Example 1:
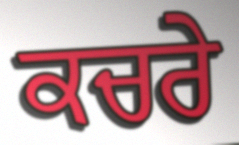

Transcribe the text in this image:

ਕਚਰੇ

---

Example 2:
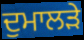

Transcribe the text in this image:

ਦੁਮਾਲੜੇ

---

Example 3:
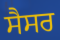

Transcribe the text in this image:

ਸੈਸਰ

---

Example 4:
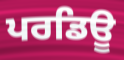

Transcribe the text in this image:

ਪਰਡਿਊ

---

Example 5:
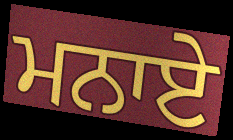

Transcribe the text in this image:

ਮਨਾਏ